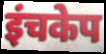
इंचकेप